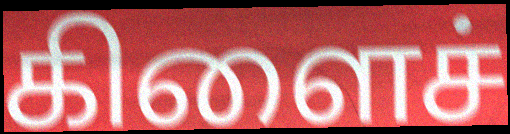
கிளைச்